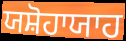
ਯਸ਼ੋਹਾਯਾਹ